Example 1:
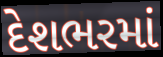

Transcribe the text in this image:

દેશભરમાં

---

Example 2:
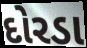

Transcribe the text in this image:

દોરડા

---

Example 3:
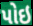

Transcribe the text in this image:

પોઇ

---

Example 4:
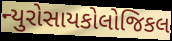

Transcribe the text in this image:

ન્યુરોસાયકોલોજિકલ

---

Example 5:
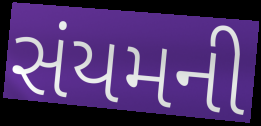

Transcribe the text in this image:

સંયમની